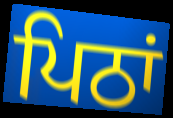
ਪਿਠਾਂ